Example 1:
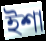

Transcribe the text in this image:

ইশা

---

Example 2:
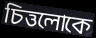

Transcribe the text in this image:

চিত্তলোকে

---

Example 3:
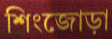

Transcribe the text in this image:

শিংজোড়া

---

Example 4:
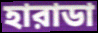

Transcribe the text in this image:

হারাডা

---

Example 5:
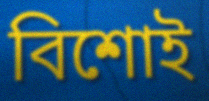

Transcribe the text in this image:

বিশোই